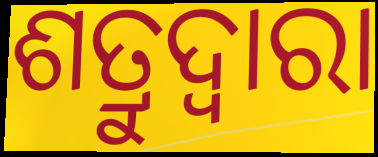
ଶତ୍ରୁଦ୍ଵାରା